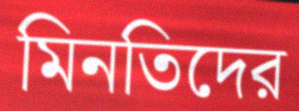
মিনতিদের